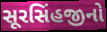
સૂરસિંહજીનો